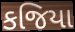
કજિયા